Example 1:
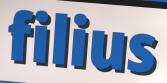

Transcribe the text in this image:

filius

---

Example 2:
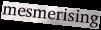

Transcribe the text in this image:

mesmerising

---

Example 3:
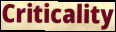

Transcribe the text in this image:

Criticality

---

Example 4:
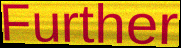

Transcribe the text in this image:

Further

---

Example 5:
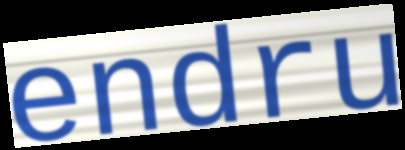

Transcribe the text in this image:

endru